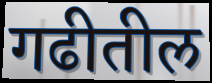
गढीतील